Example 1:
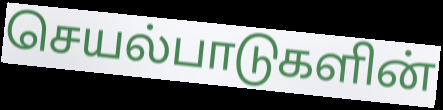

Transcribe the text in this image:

செயல்பாடுகளின்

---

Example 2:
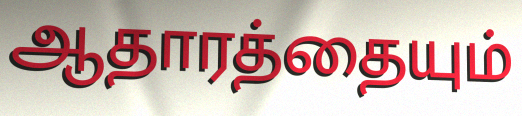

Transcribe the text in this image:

ஆதாரத்தையும்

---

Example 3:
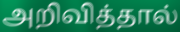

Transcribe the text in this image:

அறிவித்தால்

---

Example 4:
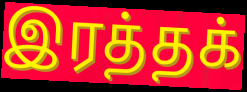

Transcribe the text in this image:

இரத்தக்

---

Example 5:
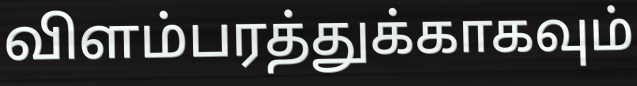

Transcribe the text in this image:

விளம்பரத்துக்காகவும்